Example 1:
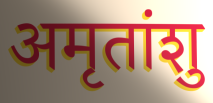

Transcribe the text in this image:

अमृतांशु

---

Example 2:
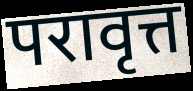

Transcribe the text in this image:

परावृत्त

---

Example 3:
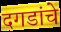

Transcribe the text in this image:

दगडांचे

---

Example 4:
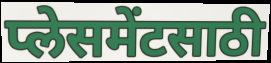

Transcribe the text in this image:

प्लेसमेंटसाठी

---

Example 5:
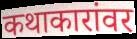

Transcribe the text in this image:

कथाकारांवर